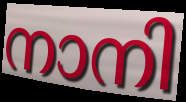
നാനി